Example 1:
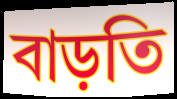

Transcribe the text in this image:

বাড়তি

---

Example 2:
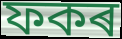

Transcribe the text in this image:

ফকৰ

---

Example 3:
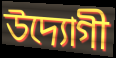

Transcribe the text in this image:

উদ্যোগী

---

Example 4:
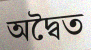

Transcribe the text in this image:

অদ্বৈত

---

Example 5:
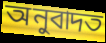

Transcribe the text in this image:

অনুবাদত